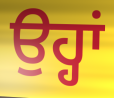
ਉਹ੍ਹਾਂ